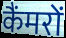
कैंमरों